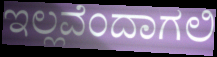
ಇಲ್ಲವೆಂದಾಗಲಿ